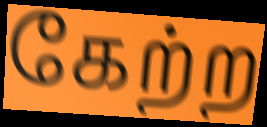
கேற்ற